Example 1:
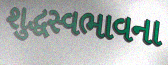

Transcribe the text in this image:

શુદ્ધસ્વભાવના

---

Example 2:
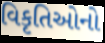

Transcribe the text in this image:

વિકૃતિઓનો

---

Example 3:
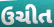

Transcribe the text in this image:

ઉચીત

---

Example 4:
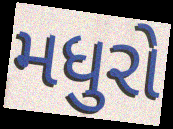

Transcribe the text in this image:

મધુરો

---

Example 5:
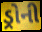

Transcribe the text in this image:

ડ્રોની